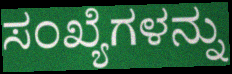
ಸಂಖ್ಯೆಗಳನ್ನು